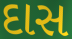
દાસ